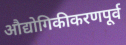
औद्योगिकीकरणपूर्व